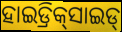
ହାଇଡ୍ରିକ୍‌ସାଇଡ୍